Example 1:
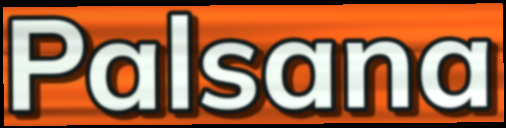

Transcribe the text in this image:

Palsana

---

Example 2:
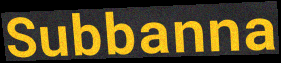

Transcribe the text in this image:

Subbanna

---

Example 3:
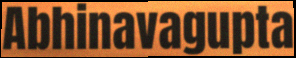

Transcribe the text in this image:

Abhinavagupta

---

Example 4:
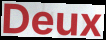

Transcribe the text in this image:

Deux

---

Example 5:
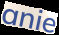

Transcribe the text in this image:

anie